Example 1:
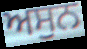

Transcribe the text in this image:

ਅਸੁਨ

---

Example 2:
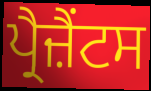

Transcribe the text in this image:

ਪ੍ਰੈਜ਼ੈਂਟਸ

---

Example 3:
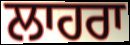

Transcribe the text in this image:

ਲਾਹਰਾ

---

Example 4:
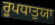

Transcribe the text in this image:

ਰੂਪਧਾਤੁਯਾ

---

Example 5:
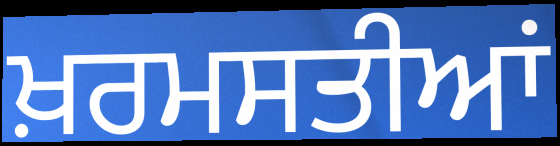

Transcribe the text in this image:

ਖ਼ਰਮਸਤੀਆਂ